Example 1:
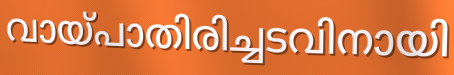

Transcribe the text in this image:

വായ്പാതിരിച്ചടവിനായി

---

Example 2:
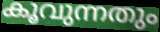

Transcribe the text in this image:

കൂവുന്നതും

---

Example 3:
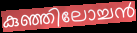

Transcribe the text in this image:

കുഞ്ഞിലോച്ചൻ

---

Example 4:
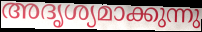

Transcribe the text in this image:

അദൃശ്യമാക്കുന്നു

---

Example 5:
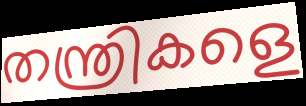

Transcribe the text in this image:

തന്ത്രികളെ